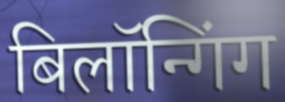
बिलॉन्गिंग